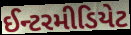
ઈન્ટરમીડિયેટ